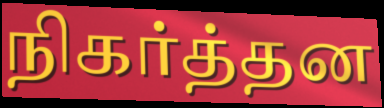
நிகர்த்தன